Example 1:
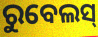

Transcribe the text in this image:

ରୁବେଲସ୍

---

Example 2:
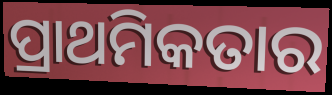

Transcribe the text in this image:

ପ୍ରାଥମିକତାର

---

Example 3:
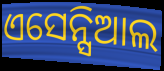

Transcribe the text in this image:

ଏସେନ୍ସିଆଲ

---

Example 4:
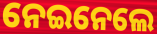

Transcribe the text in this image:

ନେଇନେଲେ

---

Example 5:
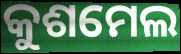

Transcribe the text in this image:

କୁଶମେଲ